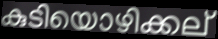
കുടിയൊഴിക്കല്